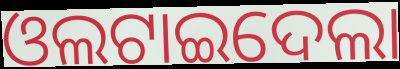
ଓଲଟାଇଦେଲା